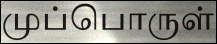
முப்பொருள்